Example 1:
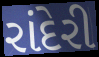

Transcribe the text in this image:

રાંદેરી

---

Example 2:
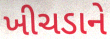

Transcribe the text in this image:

ખીચડાને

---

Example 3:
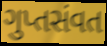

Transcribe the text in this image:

ગુપ્તસંવત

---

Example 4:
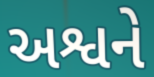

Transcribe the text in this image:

અશ્વને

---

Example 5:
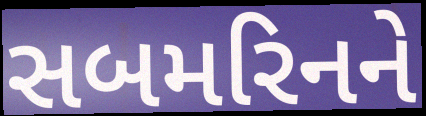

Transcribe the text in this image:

સબમરિનને